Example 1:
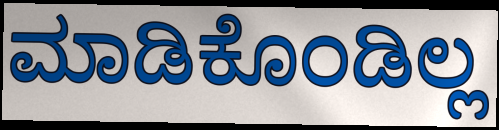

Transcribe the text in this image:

ಮಾಡಿಕೊಂಡಿಲ್ಲ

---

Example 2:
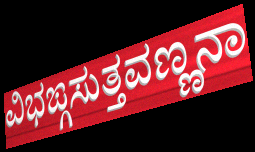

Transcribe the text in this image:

ವಿಭಙ್ಗಸುತ್ತವಣ್ಣನಾ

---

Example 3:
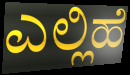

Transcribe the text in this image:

ಎಲ್ಲಿಹೆ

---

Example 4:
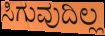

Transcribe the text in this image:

ಸಿಗುವುದಿಲ್ಲ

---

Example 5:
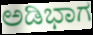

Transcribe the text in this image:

ಅಡಿಭಾಗ